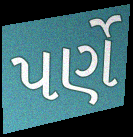
પર્ણે